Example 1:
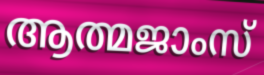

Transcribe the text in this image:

ആത്മജാംസ്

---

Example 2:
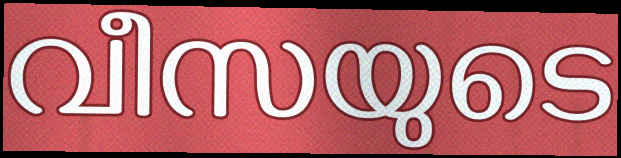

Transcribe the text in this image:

വീസയുടെ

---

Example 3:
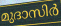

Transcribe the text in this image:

മുദാസിർ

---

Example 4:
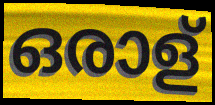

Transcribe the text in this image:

ഒരാള്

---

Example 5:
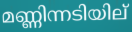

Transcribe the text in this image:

മണ്ണിന്നടിയില്